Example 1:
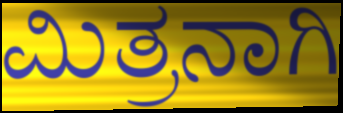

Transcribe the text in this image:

ಮಿತ್ರನಾಗಿ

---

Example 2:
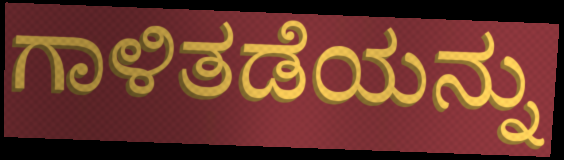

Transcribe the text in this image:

ಗಾಳಿತಡೆಯನ್ನು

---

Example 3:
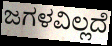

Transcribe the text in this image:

ಜಗಳವಿಲ್ಲದೆ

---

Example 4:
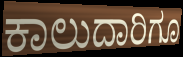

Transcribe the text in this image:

ಕಾಲುದಾರಿಗೂ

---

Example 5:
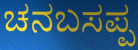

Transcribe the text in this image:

ಚನಬಸಪ್ಪ